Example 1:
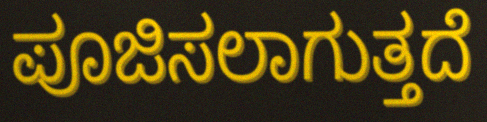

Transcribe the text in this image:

ಪೂಜಿಸಲಾಗುತ್ತದೆ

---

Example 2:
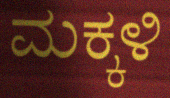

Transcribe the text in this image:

ಮಕ್ಕಳಿ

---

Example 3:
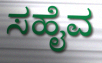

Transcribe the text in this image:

ಸಹೈವ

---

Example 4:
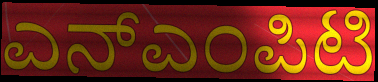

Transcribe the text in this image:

ಎನ್ಎಂಪಿಟಿ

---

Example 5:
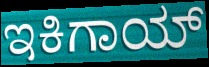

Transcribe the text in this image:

ಇಕಿಗಾಯ್